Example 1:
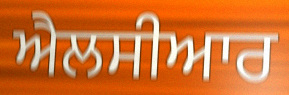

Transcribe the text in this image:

ਐਲਸੀਆਰ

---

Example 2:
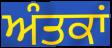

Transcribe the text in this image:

ਅੰਤਕਾਂ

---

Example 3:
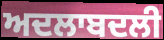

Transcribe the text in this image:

ਅਦਲਾਬਦਲੀ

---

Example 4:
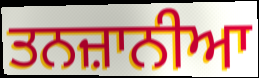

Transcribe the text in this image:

ਤਨਜ਼ਾਨੀਆ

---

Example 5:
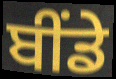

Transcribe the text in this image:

ਬੀਂਡੇ